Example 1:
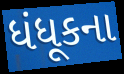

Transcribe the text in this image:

ધંધૂકના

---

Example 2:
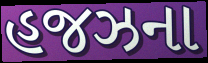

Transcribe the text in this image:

હજઝના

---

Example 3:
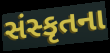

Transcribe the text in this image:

સંસ્કૃતના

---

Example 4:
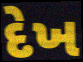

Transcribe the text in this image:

દેખ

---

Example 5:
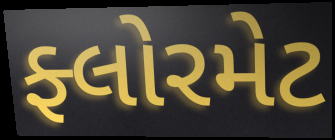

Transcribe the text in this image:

ફ્લોરમેટ